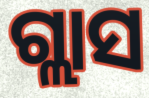
ଗ୍ଲାସ